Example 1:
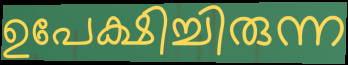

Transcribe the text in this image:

ഉപേക്ഷിച്ചിരുന്ന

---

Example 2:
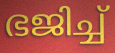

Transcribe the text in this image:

ഭജിച്ച്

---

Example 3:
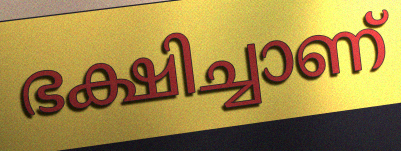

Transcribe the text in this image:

ഭക്ഷിച്ചാണ്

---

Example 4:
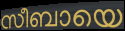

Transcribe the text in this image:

സീബായെ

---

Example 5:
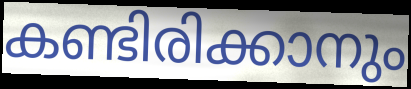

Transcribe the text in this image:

കണ്ടിരിക്കാനും